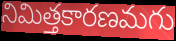
నిమిత్తకారణమగు